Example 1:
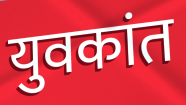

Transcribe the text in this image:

युवकांत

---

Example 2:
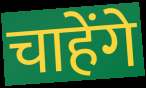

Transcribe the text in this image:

चाहेंगे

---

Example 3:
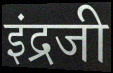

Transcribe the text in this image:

इंद्रजी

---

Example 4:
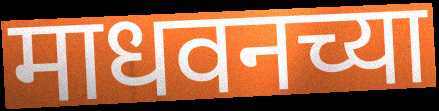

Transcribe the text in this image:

माधवनच्या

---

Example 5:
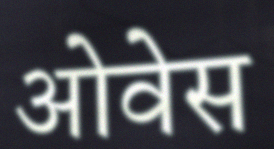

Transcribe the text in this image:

ओवेस